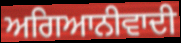
ਅਗਿਆਨੀਵਾਦੀ